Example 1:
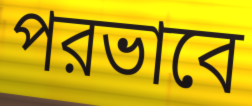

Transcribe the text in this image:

পরভাবে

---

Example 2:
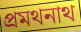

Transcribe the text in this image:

প্রমথনাথ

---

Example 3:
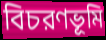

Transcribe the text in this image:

বিচরণভূমি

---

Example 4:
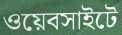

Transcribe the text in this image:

ওয়েবসাইটে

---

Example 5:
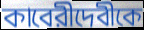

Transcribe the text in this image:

কাবেরীদেবীকে